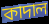
কাদাল